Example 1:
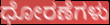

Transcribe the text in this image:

ಧೋರಣೆಗಳು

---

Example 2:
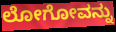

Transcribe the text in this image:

ಲೋಗೋವನ್ನು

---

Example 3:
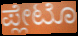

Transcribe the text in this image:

ಪ್ಲೇಟೊ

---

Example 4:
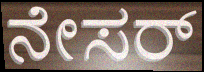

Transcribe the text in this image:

ನೇಸರ್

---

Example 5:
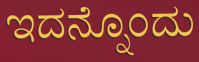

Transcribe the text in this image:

ಇದನ್ನೊಂದು